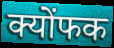
क्योंफक